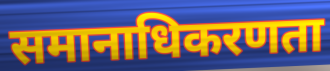
समानाधिकरणता